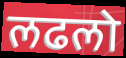
लढलो